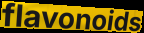
flavonoids